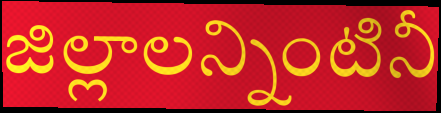
జిల్లాలన్నింటినీ